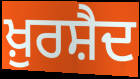
ਖ਼ੁਰਸ਼ੈਦ